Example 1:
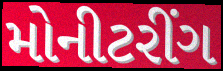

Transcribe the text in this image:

મોનીટરીંગ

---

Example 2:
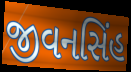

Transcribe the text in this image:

જીવનસિંહ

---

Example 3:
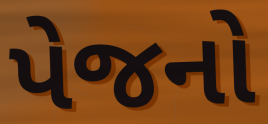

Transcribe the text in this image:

પેજનો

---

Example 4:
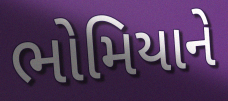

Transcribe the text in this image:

ભોમિયાને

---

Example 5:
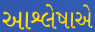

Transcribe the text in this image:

આશ્લેષાએ